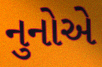
નુનોએ